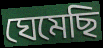
ঘেমেছি